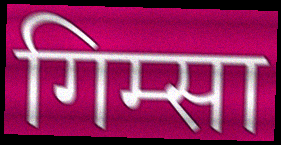
गिम्सा